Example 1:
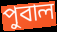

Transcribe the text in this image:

পুবাল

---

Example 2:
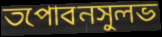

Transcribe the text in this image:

তপোবনসুলভ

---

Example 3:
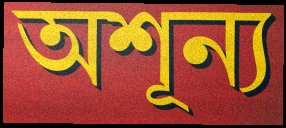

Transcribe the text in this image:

অশূন্য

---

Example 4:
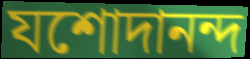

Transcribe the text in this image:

যশোদানন্দ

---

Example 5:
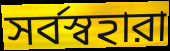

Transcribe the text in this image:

সর্বস্বহারা